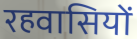
रहवासियों